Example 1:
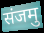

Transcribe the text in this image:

संजमु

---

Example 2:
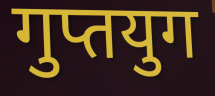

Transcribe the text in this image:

गुप्तयुग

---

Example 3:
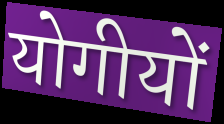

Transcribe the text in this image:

योगीयों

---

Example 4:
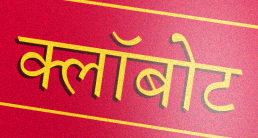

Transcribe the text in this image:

क्लॉबोट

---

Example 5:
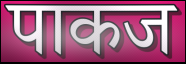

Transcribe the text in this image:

पाकज